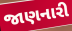
જાણનારી